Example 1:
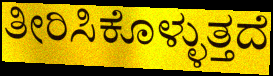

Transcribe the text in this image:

ತೀರಿಸಿಕೊಳ್ಳುತ್ತದೆ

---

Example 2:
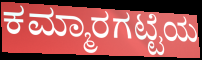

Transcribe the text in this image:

ಕಮ್ಮಾರಗಟ್ಟೆಯ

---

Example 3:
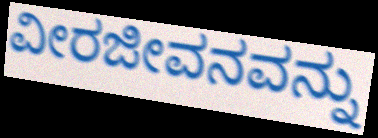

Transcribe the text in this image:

ವೀರಜೀವನವನ್ನು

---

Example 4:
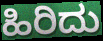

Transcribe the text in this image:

ಹಿರಿದು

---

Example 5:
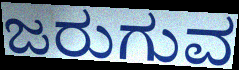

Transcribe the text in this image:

ಜರುಗುವ